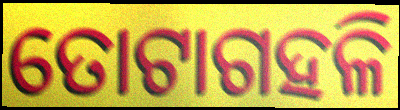
ତୋଟାଗହଳି